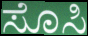
ಸೊಸಿ